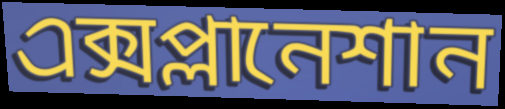
এক্সপ্লানেশান